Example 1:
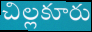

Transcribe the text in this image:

చిల్లకూరు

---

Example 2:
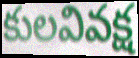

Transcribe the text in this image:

కులవివక్ష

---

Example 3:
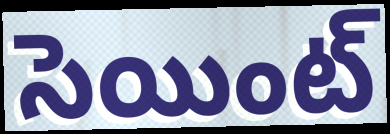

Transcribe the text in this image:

సెయింట్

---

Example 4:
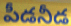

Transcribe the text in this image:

పీడనీడ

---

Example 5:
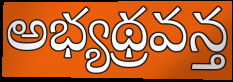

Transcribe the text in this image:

అభ్యథ్రవన్త